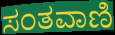
ಸಂತವಾಣಿ